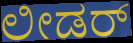
ಲೀಡರ್